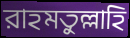
রাহমতুল্লাহি